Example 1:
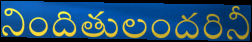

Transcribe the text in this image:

నిందితులందరినీ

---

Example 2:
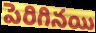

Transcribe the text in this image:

పెరిగినయి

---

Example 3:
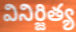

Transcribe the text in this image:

వినిర్జిత్య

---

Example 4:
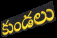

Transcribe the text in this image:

కుండలు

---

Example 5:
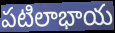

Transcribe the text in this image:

పటిలాభాయ